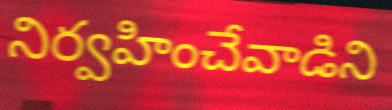
నిర్వహించేవాడిని